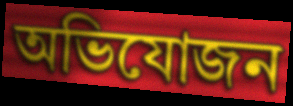
অভিযোজন